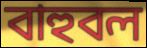
বাহুবল